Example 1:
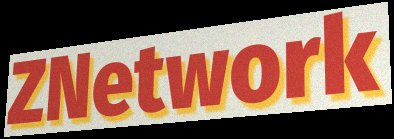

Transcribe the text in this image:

ZNetwork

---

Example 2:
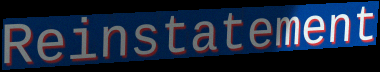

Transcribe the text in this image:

Reinstatement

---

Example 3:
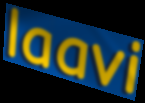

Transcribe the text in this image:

laavi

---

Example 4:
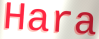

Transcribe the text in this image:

Hara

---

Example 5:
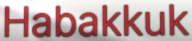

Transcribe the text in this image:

Habakkuk